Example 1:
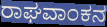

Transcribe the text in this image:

ರಾಘವಾಂಕನ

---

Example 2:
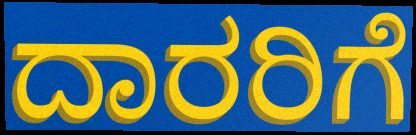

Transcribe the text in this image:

ದಾರರಿಗೆ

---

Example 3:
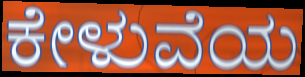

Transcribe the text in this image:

ಕೇಳುವೆಯ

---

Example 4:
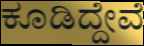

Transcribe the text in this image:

ಕೂಡಿದ್ದೇವೆ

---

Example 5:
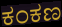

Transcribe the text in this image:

ಕಂಕಣ